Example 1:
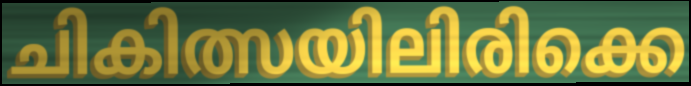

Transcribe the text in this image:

ചികിത്സയിലിരിക്കെ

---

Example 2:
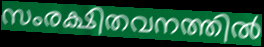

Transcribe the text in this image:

സംരക്ഷിതവനത്തിൽ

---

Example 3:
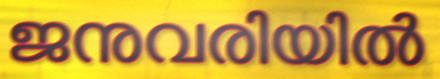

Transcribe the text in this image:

ജനുവരിയിൽ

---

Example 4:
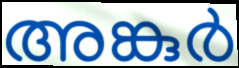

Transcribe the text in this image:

അങ്കുർ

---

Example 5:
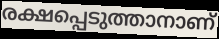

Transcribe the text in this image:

രക്ഷപ്പെടുത്താനാണ്